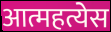
आत्महत्येस